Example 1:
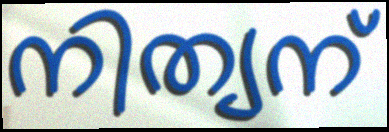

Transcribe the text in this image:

നിത്യന്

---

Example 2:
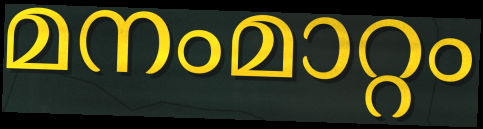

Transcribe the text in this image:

മനംമാറ്റം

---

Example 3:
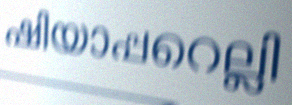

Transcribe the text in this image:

ഷിയാപ്പറെല്ലി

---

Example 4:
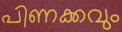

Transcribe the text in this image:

പിണക്കവും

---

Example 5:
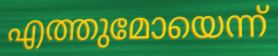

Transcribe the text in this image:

എത്തുമോയെന്ന്